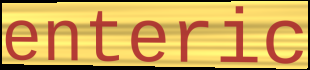
enteric